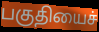
பகுதியைச்